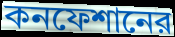
কনফেশানের